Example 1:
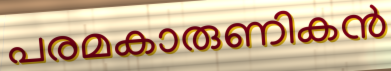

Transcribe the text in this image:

പരമകാരുണികൻ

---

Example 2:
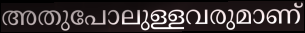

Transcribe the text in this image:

അതുപോലുള്ളവരുമാണ്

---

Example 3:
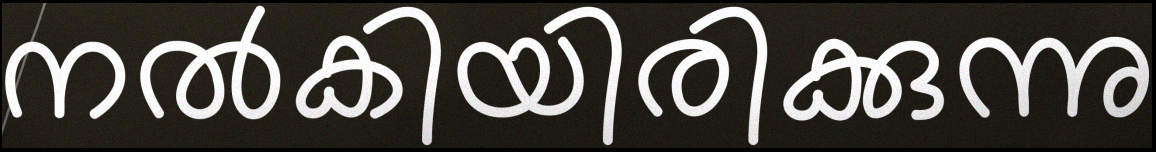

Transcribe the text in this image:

നൽകിയിരിക്കുന്നു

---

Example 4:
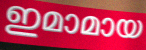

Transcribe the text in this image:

ഇമാമായ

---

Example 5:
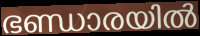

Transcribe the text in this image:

ഭണ്ഡാരയിൽ